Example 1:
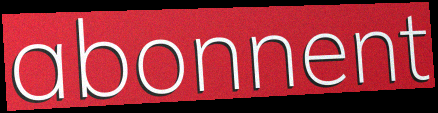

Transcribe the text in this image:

abonnent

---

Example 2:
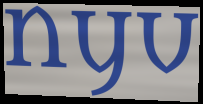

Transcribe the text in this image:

nyu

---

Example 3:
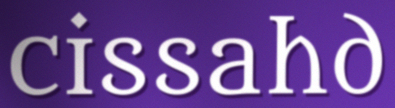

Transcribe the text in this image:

cissahd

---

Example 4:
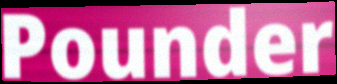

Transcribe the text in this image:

Pounder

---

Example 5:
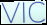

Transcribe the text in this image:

VIC